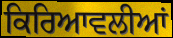
ਕਿਰਿਆਵਲੀਆਂ